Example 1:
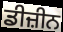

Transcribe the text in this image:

ਡੀਜ਼ੀਨ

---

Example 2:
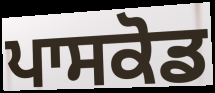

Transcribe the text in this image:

ਪਾਸਕੋਡ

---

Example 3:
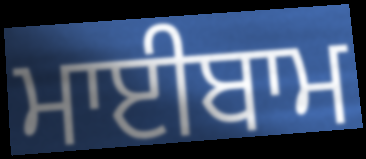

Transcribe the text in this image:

ਮਾਈਬਾਮ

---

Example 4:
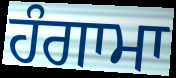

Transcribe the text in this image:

ਹੰਗਾਮਾ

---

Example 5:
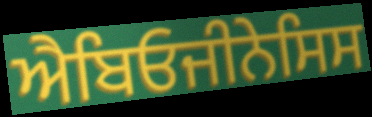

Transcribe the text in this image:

ਐਬਿਓਜੀਨੇਸਿਸ